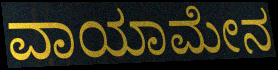
ವಾಯಾಮೇನ